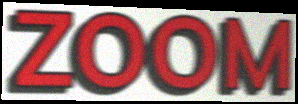
ZOOM